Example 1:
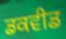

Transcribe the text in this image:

ਡਕਵੀਡ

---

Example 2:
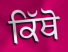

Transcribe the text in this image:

ਕਿੱਥੋ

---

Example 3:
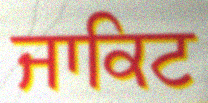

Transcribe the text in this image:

ਜਾਕਿਟ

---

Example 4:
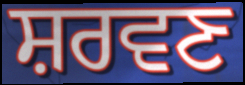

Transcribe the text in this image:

ਸ਼ਰਵਣ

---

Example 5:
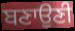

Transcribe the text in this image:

ਬਣਾਉਣੀ